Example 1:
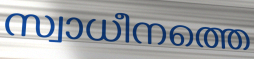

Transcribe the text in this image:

സ്വാധീനത്തെ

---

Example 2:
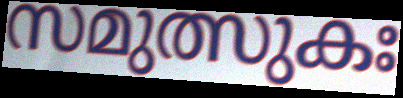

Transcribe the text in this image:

സമുത്സുകഃ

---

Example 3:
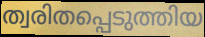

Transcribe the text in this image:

ത്വരിതപ്പെടുത്തിയ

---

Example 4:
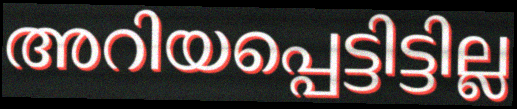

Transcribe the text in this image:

അറിയപ്പെട്ടിട്ടില്ല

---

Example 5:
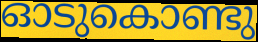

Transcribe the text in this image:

ഓടുകൊണ്ടു